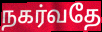
நகர்வதே